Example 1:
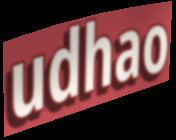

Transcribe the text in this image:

udhao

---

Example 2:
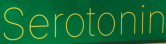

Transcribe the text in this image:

Serotonin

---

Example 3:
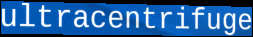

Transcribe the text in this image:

ultracentrifuge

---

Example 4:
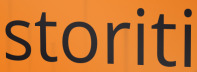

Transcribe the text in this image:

storiti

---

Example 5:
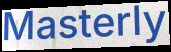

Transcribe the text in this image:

Masterly